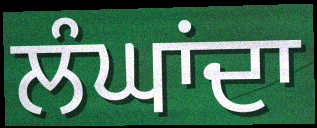
ਲੰਘਾਂਦਾ